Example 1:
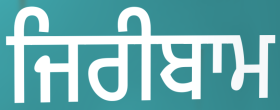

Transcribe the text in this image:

ਜਿਰੀਬਾਮ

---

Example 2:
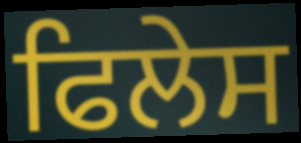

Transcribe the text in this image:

ਫਿਲੇਸ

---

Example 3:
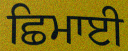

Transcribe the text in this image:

ਛਿਮਾਈ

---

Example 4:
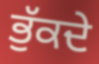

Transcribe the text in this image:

ਭੁੱਕਦੇ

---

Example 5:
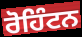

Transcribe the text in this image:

ਰੋਹਿੰਟਨ